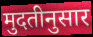
मुदतीनुसार